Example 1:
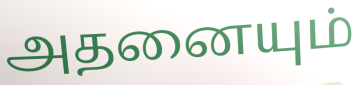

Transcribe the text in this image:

அதனையும்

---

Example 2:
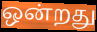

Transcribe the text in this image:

ஒன்றது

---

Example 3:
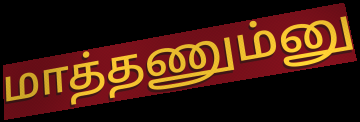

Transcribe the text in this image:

மாத்தணும்னு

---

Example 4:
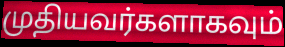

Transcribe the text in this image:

முதியவர்களாகவும்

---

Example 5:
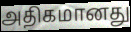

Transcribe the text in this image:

அதிகமானது